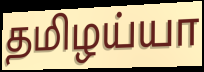
தமிழய்யா